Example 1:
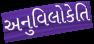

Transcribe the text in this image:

અનુવિલોકેતિ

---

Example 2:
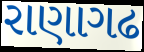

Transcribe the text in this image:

રાણાગઢ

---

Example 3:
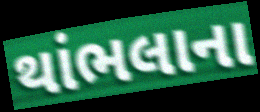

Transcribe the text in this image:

થાંભલાના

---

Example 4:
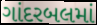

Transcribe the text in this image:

ગાંદરબલમાં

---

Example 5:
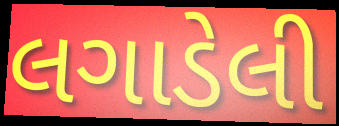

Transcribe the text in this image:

લગાડેલી